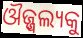
ଔଜ୍ଜ୍ଵଲ୍ୟକୁ